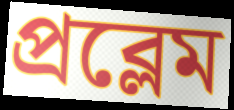
প্ৰব্লেম